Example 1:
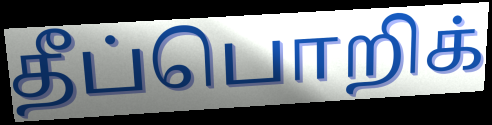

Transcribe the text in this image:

தீப்பொறிக்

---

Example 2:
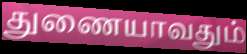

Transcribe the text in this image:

துணையாவதும்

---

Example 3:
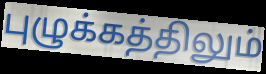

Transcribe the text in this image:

புழுக்கத்திலும்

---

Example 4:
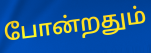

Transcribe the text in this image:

போன்றதும்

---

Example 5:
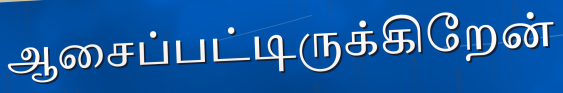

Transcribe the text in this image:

ஆசைப்பட்டிருக்கிறேன்